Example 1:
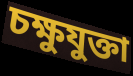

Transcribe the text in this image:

চক্ষুযুক্তা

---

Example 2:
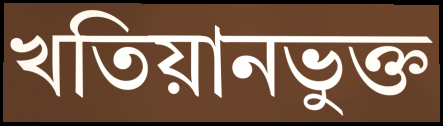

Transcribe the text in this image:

খতিয়ানভুক্ত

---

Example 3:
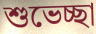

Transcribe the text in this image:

শুভেচ্ছা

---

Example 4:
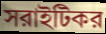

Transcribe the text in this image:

সরাইটিকর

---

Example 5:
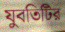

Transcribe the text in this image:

যুবতিটির